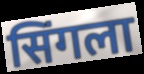
सिंगला